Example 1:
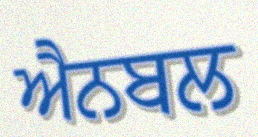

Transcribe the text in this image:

ਐਨਬਲ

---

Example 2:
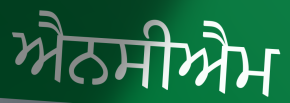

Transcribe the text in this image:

ਐਨਸੀਐਮ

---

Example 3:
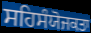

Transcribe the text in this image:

ਸਹਿਸੰਯੋਜਕਤਾ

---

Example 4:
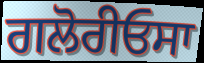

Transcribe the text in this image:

ਗਲੋਰੀਓਸਾ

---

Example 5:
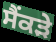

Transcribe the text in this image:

ਸੈਂਕੜੇ